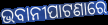
ଭବାନୀପାଟଣାରେ